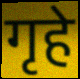
गृहे